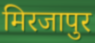
मिरजापुर